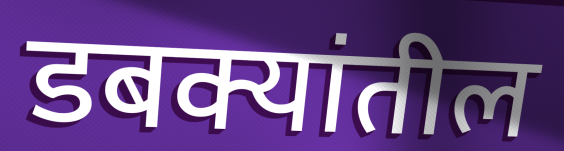
डबक्यांतील